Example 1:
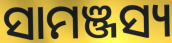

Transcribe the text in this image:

ସାମଞ୍ଜସ୍ୟ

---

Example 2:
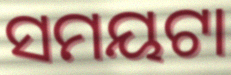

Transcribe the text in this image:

ସମୟଟା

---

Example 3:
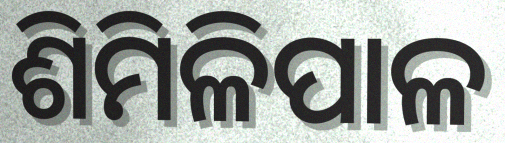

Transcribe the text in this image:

ଶିମିଳିପାଳ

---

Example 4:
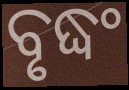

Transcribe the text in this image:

ବୃଦ୍ଧଂ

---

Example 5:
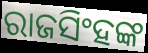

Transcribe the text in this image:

ରାଜସିଂହଙ୍କ